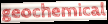
geochemical